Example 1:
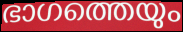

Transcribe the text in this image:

ഭാഗത്തെയും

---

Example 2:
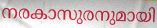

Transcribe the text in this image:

നരകാസുരനുമായി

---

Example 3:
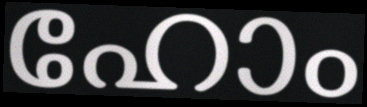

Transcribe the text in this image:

ഹോം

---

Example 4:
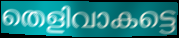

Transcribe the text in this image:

തെളിവാകട്ടെ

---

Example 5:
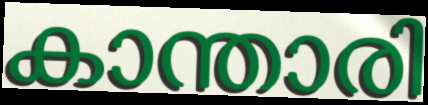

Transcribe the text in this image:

കാന്താരി